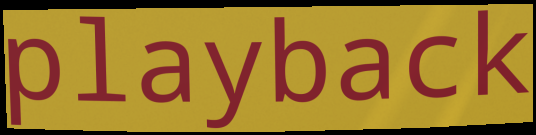
playback